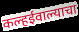
कल्हईवाल्याचा